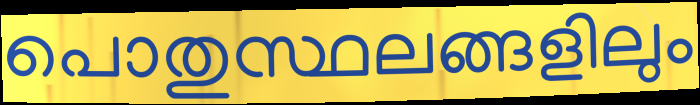
പൊതുസ്ഥലങ്ങളിലും